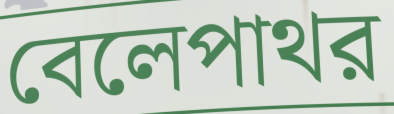
বেলেপাথর